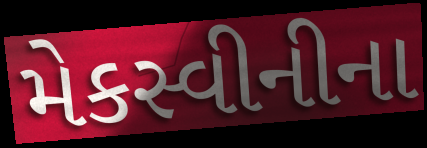
મેકસ્વીનીના